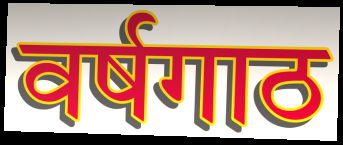
वर्षगाठ